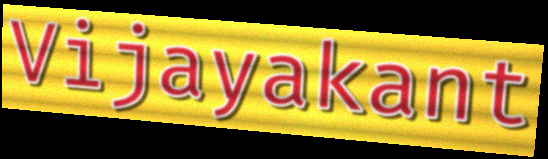
Vijayakant